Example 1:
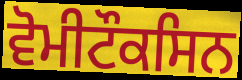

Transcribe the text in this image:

ਵੋਮੀਟੌਕਸਿਨ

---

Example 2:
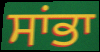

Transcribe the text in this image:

ਸਾਂਭਾ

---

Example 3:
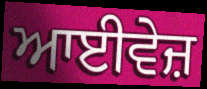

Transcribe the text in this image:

ਆਈਵੇਜ਼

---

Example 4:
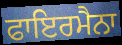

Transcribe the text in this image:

ਫਾਇਰਮੈਨਾ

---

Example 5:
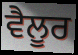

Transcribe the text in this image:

ਵੈਲੂਰ